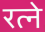
रत्ने